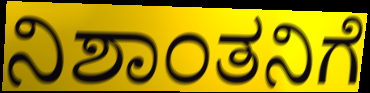
ನಿಶಾಂತನಿಗೆ